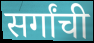
सर्गांची